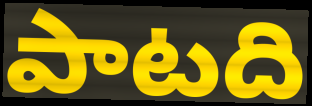
పాటది